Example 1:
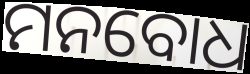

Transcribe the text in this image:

ମନବୋଧ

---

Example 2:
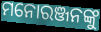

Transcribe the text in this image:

ମନୋରଞ୍ଜନଙ୍କୁ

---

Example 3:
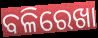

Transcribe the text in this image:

ବଳିରେଖା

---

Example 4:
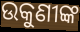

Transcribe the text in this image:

ଉକୁଣୀଙ୍କ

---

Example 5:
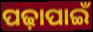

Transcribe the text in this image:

ପଢ଼ାପାଇଁ